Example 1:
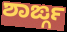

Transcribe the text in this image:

ಶಾರ್ಙ್ಗ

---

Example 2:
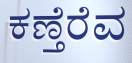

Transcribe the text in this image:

ಕಣ್ತೆರೆವ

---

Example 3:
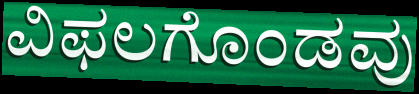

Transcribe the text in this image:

ವಿಫಲಗೊಂಡವು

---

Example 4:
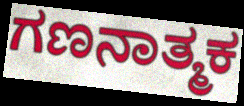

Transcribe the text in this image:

ಗಣನಾತ್ಮಕ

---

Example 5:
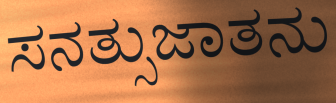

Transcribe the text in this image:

ಸನತ್ಸುಜಾತನು